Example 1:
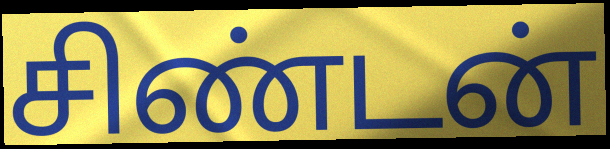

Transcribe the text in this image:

சிண்டன்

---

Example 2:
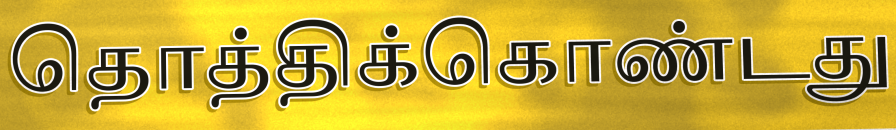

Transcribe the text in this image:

தொத்திக்கொண்டது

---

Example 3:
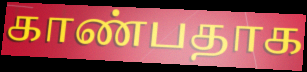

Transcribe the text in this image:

காண்பதாக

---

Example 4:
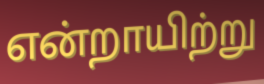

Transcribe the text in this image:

என்றாயிற்று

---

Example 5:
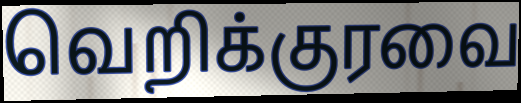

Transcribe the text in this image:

வெறிக்குரவை